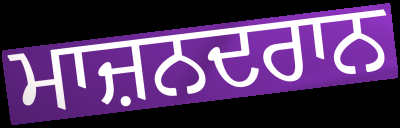
ਮਾਜ਼ਨਦਰਾਨ